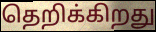
தெறிக்கிறது